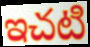
ఇచటి